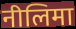
नीलिमा